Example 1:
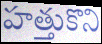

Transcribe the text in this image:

హత్తుకొని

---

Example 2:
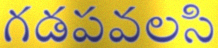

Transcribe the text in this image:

గడపవలసి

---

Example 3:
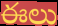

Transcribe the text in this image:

ఈలు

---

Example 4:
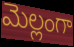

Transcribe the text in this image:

మెల్లంగా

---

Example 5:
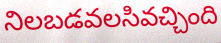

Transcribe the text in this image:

నిలబడవలసివచ్చింది